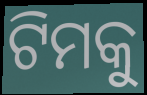
ଟିମକୁ